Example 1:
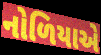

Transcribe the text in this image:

નોળિયાએ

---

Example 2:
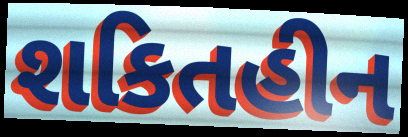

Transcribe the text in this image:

શકિતહીન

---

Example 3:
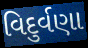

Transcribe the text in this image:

વિદુર્વણા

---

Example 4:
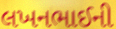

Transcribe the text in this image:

લખનભાઈની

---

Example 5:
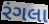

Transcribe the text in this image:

રંગલા